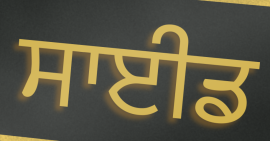
ਸਾਈਡ